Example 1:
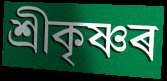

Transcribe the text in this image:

শ্ৰীকৃষ্ণৰ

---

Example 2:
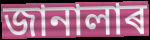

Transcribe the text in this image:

জানালাৰ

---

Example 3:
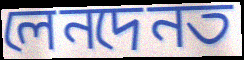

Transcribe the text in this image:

লেনদেনত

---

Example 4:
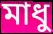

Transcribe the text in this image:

মাধু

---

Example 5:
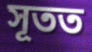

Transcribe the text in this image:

সূতত